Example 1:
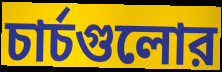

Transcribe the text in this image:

চার্চগুলোর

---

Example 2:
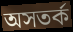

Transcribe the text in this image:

অসতর্ক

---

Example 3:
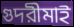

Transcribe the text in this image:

গুদরীমাই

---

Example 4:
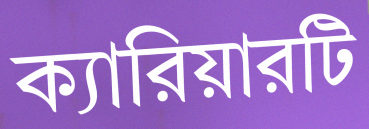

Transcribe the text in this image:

ক্যারিয়ারটি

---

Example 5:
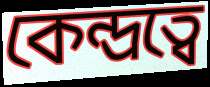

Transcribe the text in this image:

কেন্দ্রত্বে